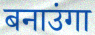
बनाउंगा